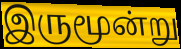
இருமூன்று